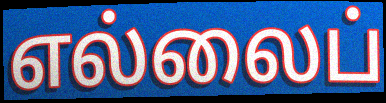
எல்லைப்